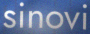
sinovi